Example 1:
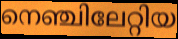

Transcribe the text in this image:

നെഞ്ചിലേറ്റിയ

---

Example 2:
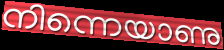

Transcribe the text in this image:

നിന്നെയാണു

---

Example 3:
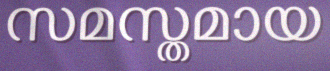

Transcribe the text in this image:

സമസ്തമായ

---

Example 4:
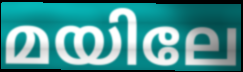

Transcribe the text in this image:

മയിലേ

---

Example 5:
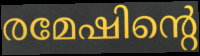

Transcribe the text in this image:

രമേഷിന്റെ